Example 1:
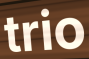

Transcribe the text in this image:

trio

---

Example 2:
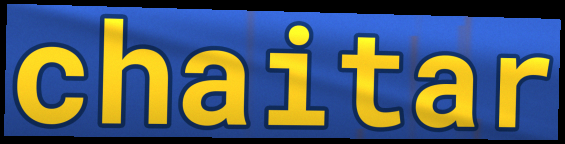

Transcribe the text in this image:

chaitar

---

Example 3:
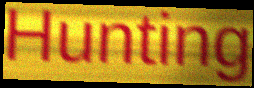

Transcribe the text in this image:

Hunting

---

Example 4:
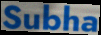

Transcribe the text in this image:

Subha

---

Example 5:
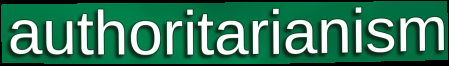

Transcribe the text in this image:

authoritarianism